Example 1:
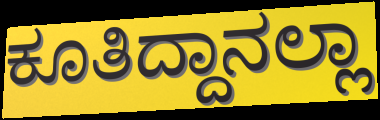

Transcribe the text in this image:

ಕೂತಿದ್ದಾನಲ್ಲಾ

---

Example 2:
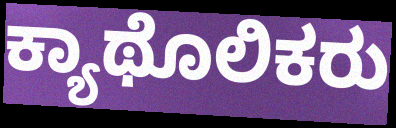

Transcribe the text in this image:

ಕ್ಯಾಥೊಲಿಕರು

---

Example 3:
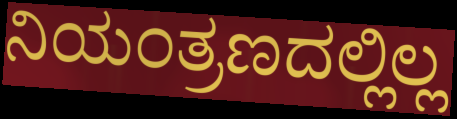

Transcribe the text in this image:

ನಿಯಂತ್ರಣದಲ್ಲಿಲ್ಲ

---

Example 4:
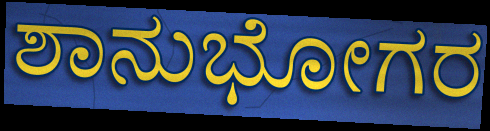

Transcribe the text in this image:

ಶಾನುಭೋಗರ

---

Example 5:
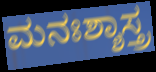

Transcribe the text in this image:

ಮನಃಶ್ಶಾಸ್ತ್ರ